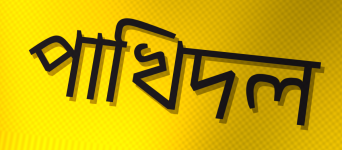
পাখিদল